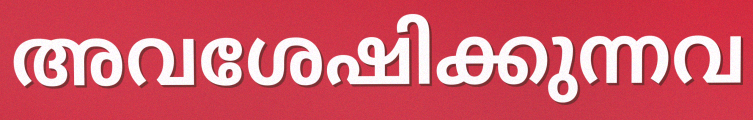
അവശേഷിക്കുന്നവ